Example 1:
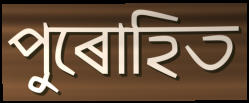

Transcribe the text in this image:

পুৰোহিত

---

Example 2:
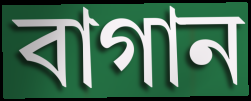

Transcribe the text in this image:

বাগান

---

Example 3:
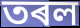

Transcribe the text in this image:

তৰল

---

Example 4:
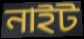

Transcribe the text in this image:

নাইট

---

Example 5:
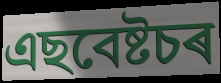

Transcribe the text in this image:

এছবেষ্টচৰ